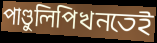
পাণ্ডুলিপিখনতেই